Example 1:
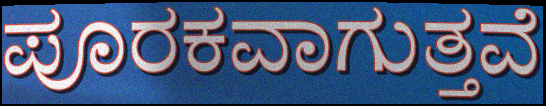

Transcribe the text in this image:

ಪೂರಕವಾಗುತ್ತವೆ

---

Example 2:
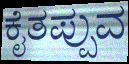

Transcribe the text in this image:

ಕೈತಪ್ಪುವ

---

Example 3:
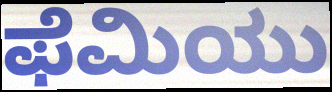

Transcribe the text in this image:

ಫೆಮಿಯು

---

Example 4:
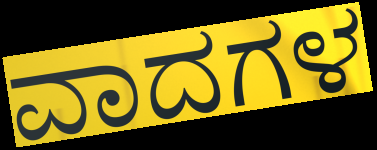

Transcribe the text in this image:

ವಾದಗಳ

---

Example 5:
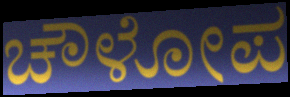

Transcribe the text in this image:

ಚೌಳೋಪ